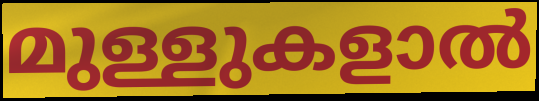
മുള്ളുകളാൽ